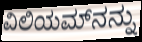
ವಿಲಿಯಮ್‌ನನ್ನು